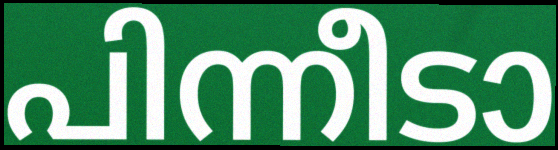
പിന്നീടാ